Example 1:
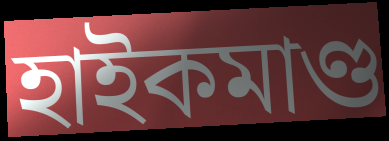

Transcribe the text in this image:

হাইকমাণ্ড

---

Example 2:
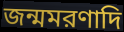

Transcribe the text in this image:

জন্মমরণাদি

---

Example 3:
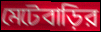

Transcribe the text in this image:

মেটেবাড়ির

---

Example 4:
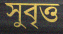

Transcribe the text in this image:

সুবৃত্ত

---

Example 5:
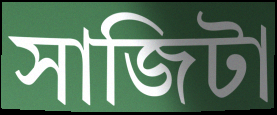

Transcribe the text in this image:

সাজিটা